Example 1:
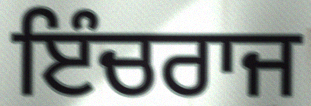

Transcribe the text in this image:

ਇੰਚਰਾਜ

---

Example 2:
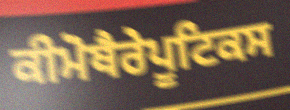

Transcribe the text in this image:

ਕੀਮੋਥੈਰੇਪੂਟਿਕਸ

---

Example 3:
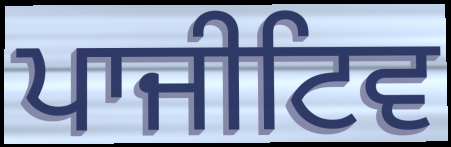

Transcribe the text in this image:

ਪਾਜੀਟਿਵ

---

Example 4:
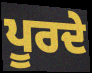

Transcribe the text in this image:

ਪੂਰਦੇ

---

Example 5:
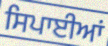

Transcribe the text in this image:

ਸਿਪਾਈਆਂ